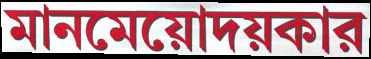
মানমেয়োদয়কার